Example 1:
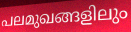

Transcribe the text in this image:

പലമുഖങ്ങളിലും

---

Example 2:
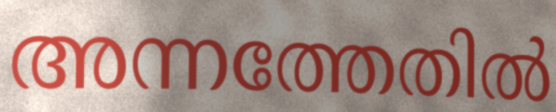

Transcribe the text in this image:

അന്നത്തേതിൽ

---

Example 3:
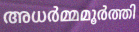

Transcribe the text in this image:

അധർമ്മമൂർത്തി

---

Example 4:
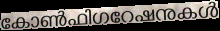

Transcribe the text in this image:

കോൺഫിഗറേഷനുകൾ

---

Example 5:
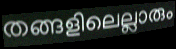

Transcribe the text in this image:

തങ്ങളിലെല്ലാരും